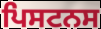
ਪਿਸਟਨਸ